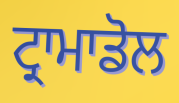
ਟ੍ਰਾਮਾਡੋਲ